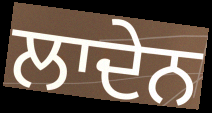
ਲਾਦੇਨ